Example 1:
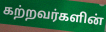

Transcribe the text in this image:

கற்றவர்களின்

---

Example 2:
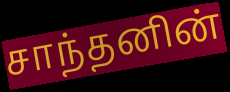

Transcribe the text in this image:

சாந்தனின்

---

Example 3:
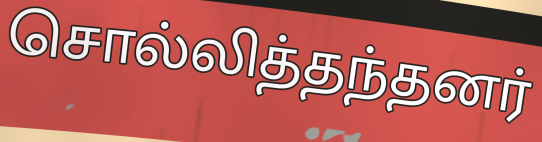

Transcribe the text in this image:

சொல்லித்தந்தனர்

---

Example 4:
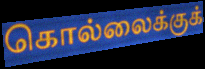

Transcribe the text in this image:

கொல்லைக்குக்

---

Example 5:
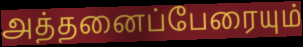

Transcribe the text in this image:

அத்தனைப்பேரையும்